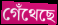
গেঁথেছে